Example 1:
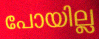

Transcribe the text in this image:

പോയില്ല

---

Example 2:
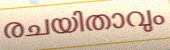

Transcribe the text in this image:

രചയിതാവും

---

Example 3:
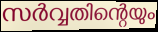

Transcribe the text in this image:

സർവ്വതിന്റെയും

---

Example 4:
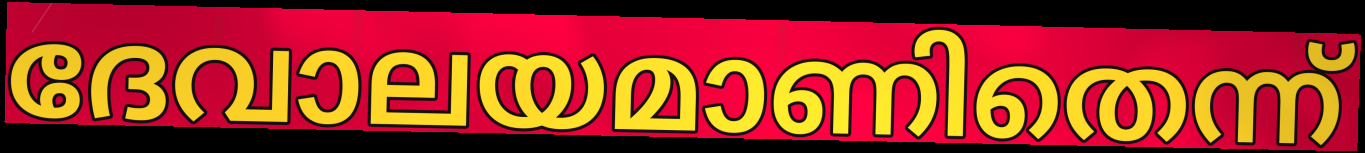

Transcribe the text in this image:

ദേവാലയമാണിതെന്ന്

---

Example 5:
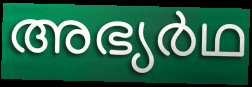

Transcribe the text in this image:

അഭ്യർഥ